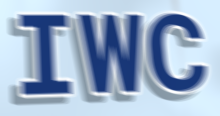
IWC